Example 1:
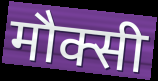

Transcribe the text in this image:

मौक्सी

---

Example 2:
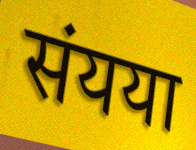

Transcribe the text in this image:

संयया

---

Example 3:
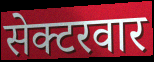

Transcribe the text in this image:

सेक्टरवार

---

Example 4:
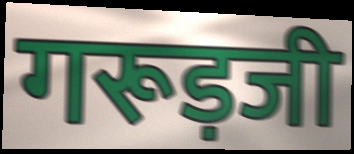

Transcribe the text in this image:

गरूड़जी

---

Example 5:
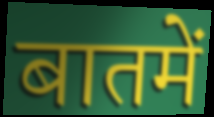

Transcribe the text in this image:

बातमें